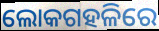
ଲୋକଗହଳିରେ